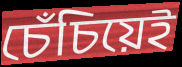
চেঁচিয়েই